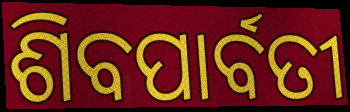
ଶିବପାର୍ବତୀ